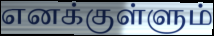
எனக்குள்ளும்